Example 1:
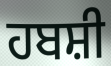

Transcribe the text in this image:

ਹਬਸ਼ੀ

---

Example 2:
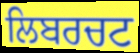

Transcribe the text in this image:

ਲਿਬਰਚਟ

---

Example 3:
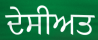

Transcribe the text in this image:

ਦੇਸੀਅਤ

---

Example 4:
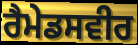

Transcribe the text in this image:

ਰੈਮੇਡਸਵੀਰ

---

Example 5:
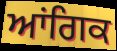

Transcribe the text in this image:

ਆਂਗਿਕ